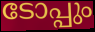
ടോപ്പും